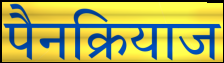
पैनक्रियाज